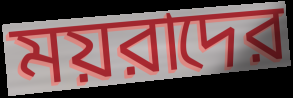
ময়রাদের